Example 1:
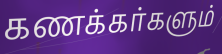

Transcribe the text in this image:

கணக்கர்களும்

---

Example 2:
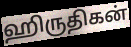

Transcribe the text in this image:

ஹிருதிகன்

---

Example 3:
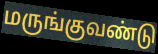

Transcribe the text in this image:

மருங்குவண்டு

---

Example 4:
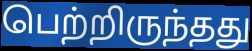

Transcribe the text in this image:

பெற்றிருந்தது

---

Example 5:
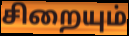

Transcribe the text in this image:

சிறையும்